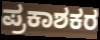
ಪ್ರಕಾಶಕರ